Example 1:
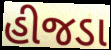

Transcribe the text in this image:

હીજડા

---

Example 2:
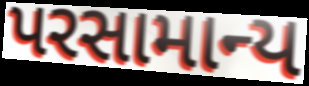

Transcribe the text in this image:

પરસામાન્ય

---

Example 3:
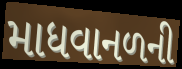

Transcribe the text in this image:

માધવાનળની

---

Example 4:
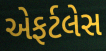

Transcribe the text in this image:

એફર્ટલેસ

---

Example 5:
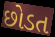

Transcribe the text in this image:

છોડત